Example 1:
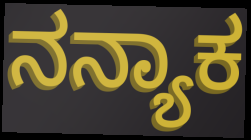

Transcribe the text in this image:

ನನ್ಯಾಕ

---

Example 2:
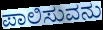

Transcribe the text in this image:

ಪಾಲಿಸುವನು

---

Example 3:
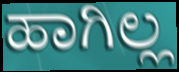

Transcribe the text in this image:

ಹಾಗಿಲ್ಲ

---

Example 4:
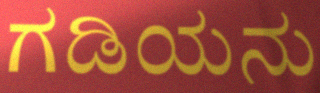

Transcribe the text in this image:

ಗಡಿಯನು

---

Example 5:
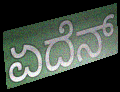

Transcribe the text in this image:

ಏದೆನ್